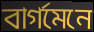
বাৰ্গমেনে